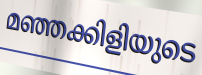
മഞ്ഞക്കിളിയുടെ